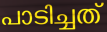
പാടിച്ചത്